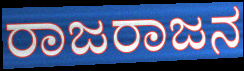
ರಾಜರಾಜನ